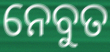
ନେବୁତ